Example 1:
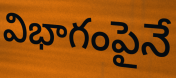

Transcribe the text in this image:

విభాగంపైనే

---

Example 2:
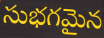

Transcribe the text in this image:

సుభగమైన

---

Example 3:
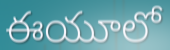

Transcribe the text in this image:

ఈయూలో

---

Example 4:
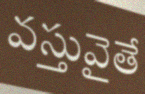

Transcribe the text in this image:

వస్తువైతే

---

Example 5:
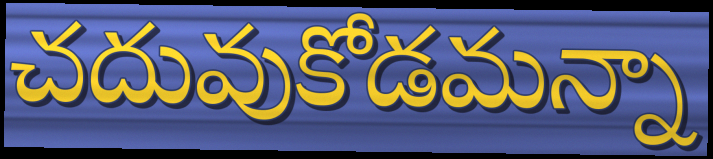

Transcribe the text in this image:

చదువుకోడమన్నా